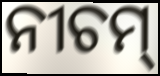
ନୀଚମ୍